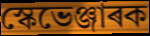
স্কেভেঞ্জাৰক